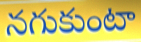
నగుకుంటా